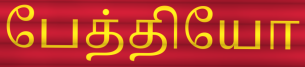
பேத்தியோ